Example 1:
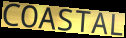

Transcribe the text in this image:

COASTAL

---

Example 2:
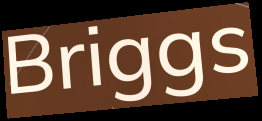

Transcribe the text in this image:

Briggs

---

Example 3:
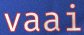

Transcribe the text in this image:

vaai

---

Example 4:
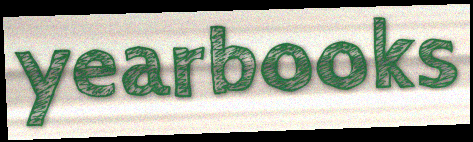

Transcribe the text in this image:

yearbooks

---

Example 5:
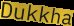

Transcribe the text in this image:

Dukkha